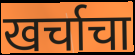
खर्चाचा